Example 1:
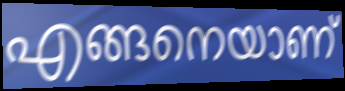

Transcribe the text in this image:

എങ്ങനെയാണ്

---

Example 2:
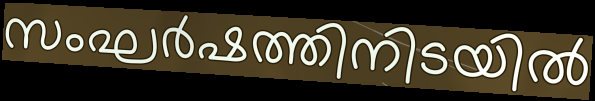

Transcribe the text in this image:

സംഘർഷത്തിനിടയിൽ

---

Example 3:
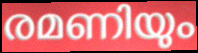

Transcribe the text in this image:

രമണിയും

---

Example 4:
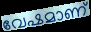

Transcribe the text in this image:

വേഷമാണ്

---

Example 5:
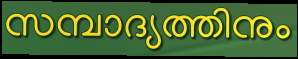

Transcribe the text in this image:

സമ്പാദ്യത്തിനും